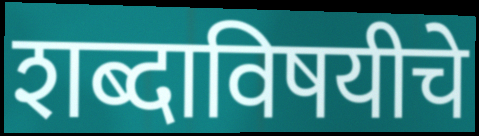
शब्दाविषयीचे